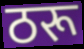
ठरू